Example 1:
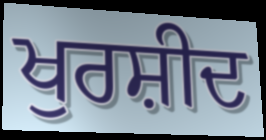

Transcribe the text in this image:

ਖੁਰਸ਼ੀਦ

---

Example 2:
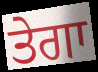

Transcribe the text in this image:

ਤੇਗਾ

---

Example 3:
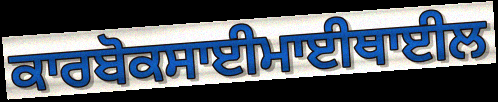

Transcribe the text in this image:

ਕਾਰਬੋਕਸਾਈਮਾਈਥਾਈਲ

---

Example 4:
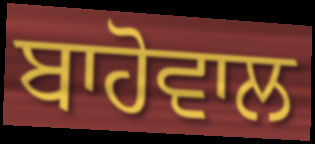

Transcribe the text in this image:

ਬਾਹੋਵਾਲ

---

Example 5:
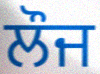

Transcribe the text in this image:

ਲੌਜ